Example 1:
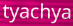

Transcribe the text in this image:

tyachya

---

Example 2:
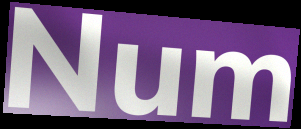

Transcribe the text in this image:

Num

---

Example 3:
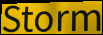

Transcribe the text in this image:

Storm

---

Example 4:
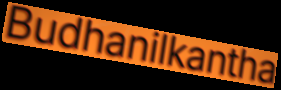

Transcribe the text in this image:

Budhanilkantha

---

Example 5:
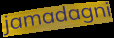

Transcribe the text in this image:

jamadagni